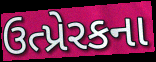
ઉત્પ્રેરકના